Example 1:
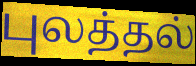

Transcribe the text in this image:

புலத்தல்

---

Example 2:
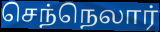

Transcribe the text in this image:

செந்நெலார்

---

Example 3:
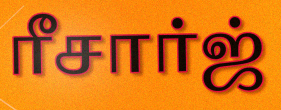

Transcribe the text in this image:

ரீசார்ஜ்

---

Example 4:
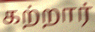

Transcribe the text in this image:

கற்றார்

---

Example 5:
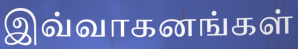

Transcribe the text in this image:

இவ்வாகனங்கள்